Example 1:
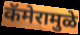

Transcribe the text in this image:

कॅमेरामुळे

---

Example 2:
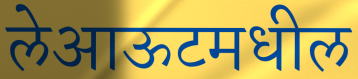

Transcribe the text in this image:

लेआऊटमधील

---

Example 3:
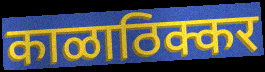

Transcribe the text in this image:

काळाठिक्कर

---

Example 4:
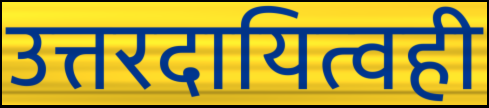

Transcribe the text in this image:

उत्तरदायित्वही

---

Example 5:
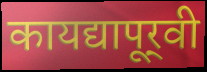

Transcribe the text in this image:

कायद्यापूर्वी